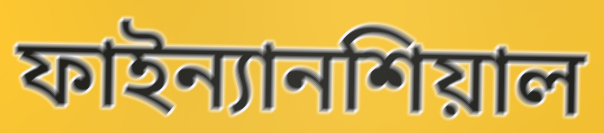
ফাইন্যানশিয়াল